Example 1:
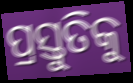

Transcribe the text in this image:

ପ୍ରସ୍ତୁତିକୁ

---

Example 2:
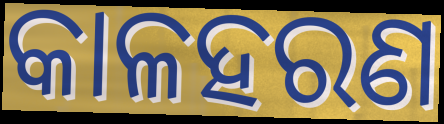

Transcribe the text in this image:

କାଳହରଣ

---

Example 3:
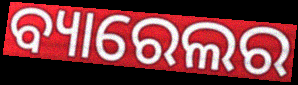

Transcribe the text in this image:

ବ୍ୟାରେଲର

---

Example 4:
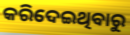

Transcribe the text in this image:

କରିଦେଇଥିବାରୁ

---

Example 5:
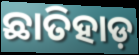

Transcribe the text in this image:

ଛାତିହାଡ଼